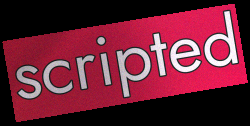
scripted